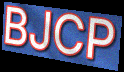
BJCP